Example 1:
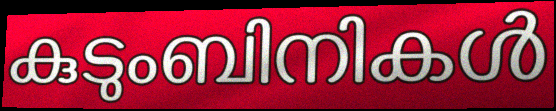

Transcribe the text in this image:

കുടുംബിനികൾ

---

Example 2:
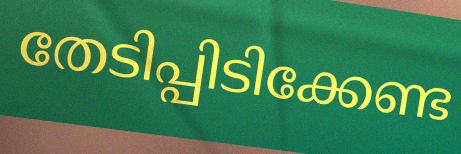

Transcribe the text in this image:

തേടിപ്പിടിക്കേണ്ട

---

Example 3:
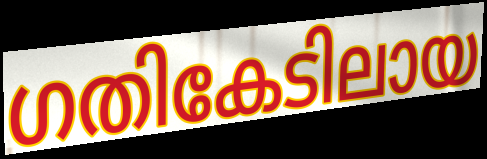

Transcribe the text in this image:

ഗതികേടിലായ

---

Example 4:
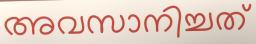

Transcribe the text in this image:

അവസാനിച്ചത്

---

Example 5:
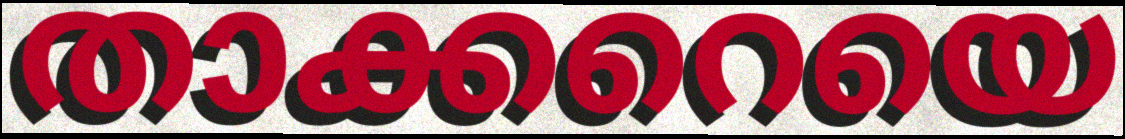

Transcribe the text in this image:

താക്കറെയെ